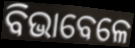
ବିଭାବେଳେ